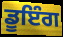
ਡੂਇੰਗ